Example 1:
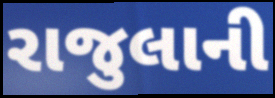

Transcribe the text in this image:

રાજુલાની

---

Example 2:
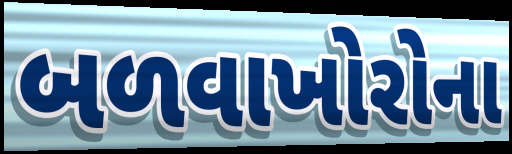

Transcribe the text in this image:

બળવાખોરોના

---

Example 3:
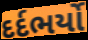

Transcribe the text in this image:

દર્દભર્યો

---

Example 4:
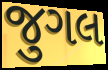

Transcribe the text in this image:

જુગલ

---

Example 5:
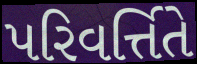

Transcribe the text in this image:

પરિવર્ત્તિતે